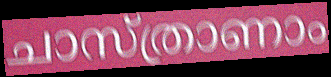
ചാസ്ത്രാണാം